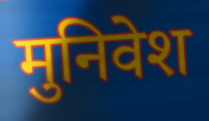
मुनिवेश